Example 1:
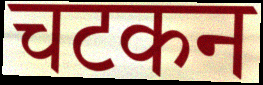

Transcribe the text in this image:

चटकन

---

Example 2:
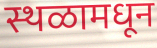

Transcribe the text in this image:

स्थळामधून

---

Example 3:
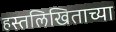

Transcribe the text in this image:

हस्तलिखिताच्या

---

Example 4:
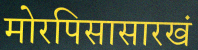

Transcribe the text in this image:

मोरपिसासारखं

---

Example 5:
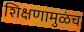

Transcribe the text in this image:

शिक्षणामुळंच